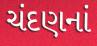
ચંદણનાં